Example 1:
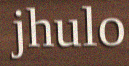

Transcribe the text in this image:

jhulo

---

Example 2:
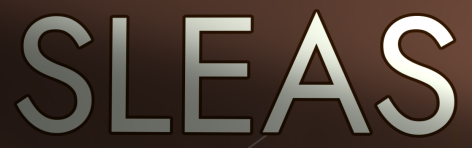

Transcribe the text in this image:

SLEAS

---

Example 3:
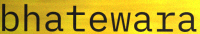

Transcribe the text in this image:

bhatewara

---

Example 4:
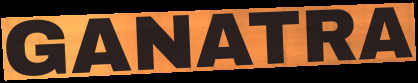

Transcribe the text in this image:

GANATRA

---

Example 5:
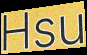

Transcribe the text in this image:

Hsu